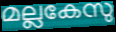
മല്ലകേസു